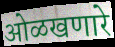
ओळखणारे